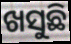
ଖସୁଛି